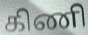
கிணி